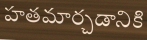
హతమార్చడానికి